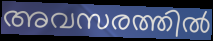
അവസരത്തിൽ